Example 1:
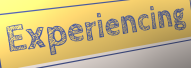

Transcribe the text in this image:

Experiencing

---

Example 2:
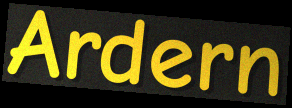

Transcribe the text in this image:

Ardern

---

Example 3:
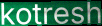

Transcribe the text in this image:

kotresh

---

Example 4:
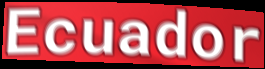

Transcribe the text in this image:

Ecuador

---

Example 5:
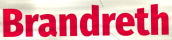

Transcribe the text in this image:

Brandreth